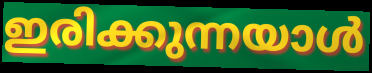
ഇരിക്കുന്നയാൾ